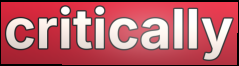
critically